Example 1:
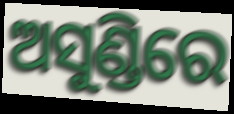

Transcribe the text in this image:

ଅସୁଣ୍ଡିରେ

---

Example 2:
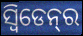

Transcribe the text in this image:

ସ୍ୱିଡେନ୍‌ର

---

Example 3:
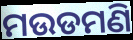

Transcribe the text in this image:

ମଉଡମଣି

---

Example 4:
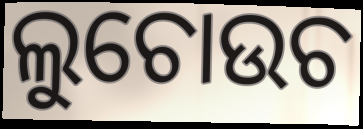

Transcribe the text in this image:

ଲୁଚୋଉଚ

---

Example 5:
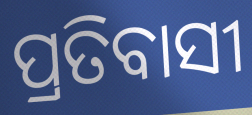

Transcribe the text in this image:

ପ୍ରତିବାସୀ